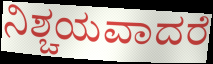
ನಿಶ್ಚಯವಾದರೆ